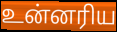
உன்னரிய